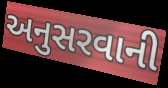
અનુસરવાની